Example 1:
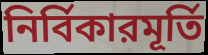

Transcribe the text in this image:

নির্বিকারমূর্তি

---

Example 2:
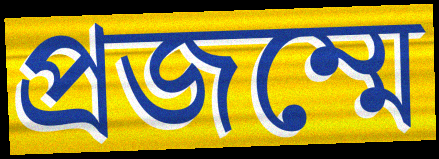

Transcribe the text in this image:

প্রজম্মে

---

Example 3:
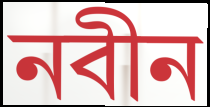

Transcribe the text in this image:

নবীন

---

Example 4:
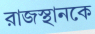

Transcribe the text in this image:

রাজস্থানকে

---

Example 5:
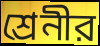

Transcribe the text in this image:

শ্রেনীর